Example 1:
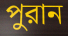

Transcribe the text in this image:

পুরান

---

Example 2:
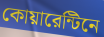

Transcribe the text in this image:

কোয়ারেন্টিনে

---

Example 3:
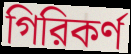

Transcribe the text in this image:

গিরিকর্ণ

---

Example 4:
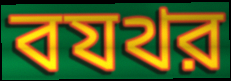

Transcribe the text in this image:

বযথর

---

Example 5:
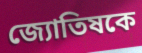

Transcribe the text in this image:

জ্যোতিষকে